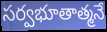
సర్వభూతాత్మనే